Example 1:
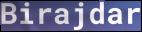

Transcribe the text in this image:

Birajdar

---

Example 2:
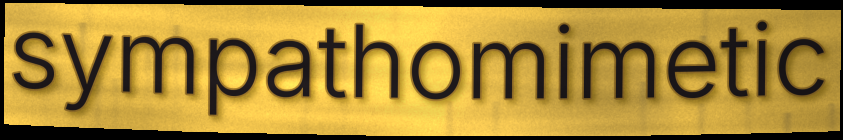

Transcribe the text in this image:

sympathomimetic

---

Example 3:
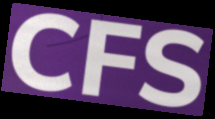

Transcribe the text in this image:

CFS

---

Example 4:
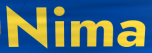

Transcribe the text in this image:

Nima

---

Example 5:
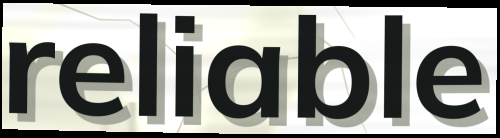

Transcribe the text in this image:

reliable